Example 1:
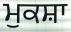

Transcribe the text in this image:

ਮੁਕਸ਼ਾ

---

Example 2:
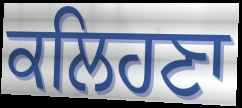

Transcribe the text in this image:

ਕਲਿਹਣਾ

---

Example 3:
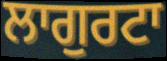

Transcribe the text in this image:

ਲਾਗੁਰਟਾ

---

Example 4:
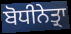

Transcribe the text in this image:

ਬੋਧੀਨੇਤ੍ਰਾ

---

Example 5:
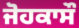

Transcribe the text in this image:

ਜੋਹਕਾਸੌ